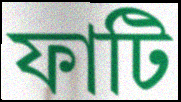
ফাটি